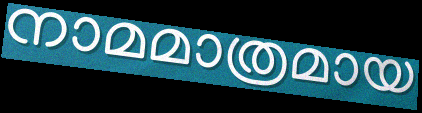
നാമമാത്രമായ